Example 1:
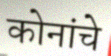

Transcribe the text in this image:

कोनांचे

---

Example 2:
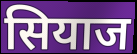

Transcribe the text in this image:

सियाज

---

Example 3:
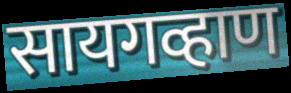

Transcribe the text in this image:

सायगव्हाण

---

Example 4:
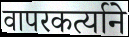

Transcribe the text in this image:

वापरकर्त्याने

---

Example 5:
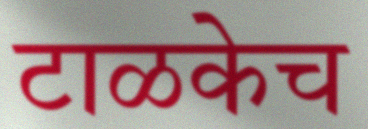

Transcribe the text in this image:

टाळकेच